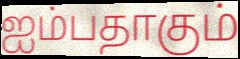
ஐம்பதாகும்